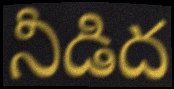
నీడిద